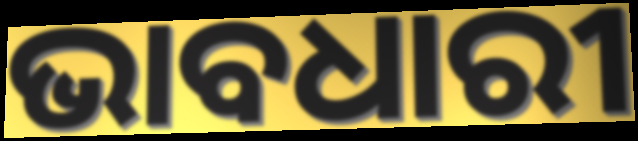
ଭାବଧାରୀ